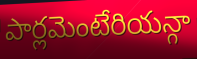
పార్లమెంటేరియన్గా